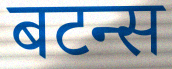
बटन्स